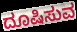
ದೂಷಿಸುವ